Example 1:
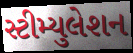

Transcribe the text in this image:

સ્ટીમ્યુલેશન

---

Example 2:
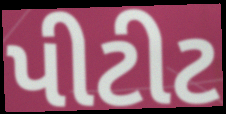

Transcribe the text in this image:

પીટીટ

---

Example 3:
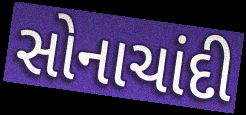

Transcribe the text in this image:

સોનાચાંદી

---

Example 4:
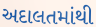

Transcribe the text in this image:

અદાલતમાંથી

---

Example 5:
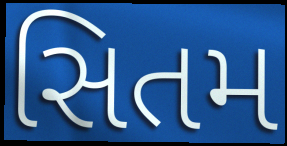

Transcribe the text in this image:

સિતમ